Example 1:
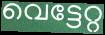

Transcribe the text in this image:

വെട്ടേറ്റ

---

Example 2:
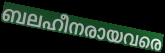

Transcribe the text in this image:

ബലഹീനരായവരെ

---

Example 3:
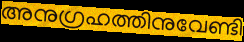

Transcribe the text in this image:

അനുഗ്രഹത്തിനുവേണ്ടി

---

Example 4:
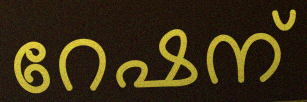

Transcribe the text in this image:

റേഷന്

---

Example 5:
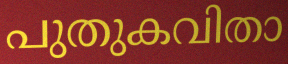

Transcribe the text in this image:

പുതുകവിതാ